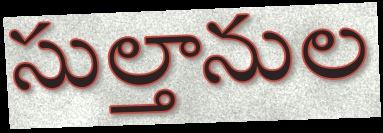
సుల్తానుల